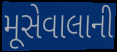
મૂસેવાલાની